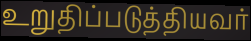
உறுதிப்படுத்தியவர்